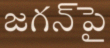
జగన్‌పై